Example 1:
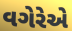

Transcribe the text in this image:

વગેરેએ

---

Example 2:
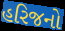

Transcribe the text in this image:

હરિજનો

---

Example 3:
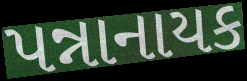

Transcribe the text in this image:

પન્નાનાયક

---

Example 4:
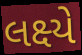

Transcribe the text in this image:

લક્ષ્યે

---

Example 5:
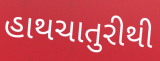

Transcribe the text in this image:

હાથચાતુરીથી